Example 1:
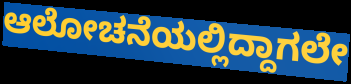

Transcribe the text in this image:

ಆಲೋಚನೆಯಲ್ಲಿದ್ದಾಗಲೇ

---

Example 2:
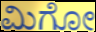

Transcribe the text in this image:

ಮಿಗೋ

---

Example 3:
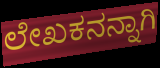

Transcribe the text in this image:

ಲೇಖಕನನ್ನಾಗಿ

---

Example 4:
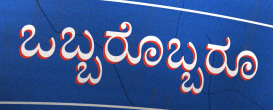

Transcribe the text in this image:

ಒಬ್ಬರೊಬ್ಬರೂ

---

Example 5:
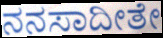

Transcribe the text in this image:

ನನಸಾದೀತೇ